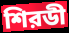
শিরডী